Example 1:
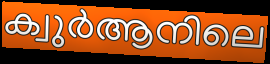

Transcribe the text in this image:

ക്വുർആനിലെ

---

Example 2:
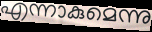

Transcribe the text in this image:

എന്നാകുമെന്നു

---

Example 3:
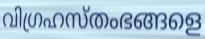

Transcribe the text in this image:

വിഗ്രഹസ്തംഭങ്ങളെ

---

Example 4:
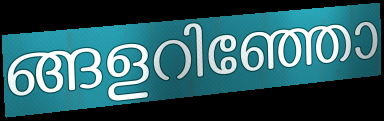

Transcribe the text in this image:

ങ്ങളറിഞ്ഞോ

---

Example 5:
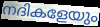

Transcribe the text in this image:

നദികളേയും